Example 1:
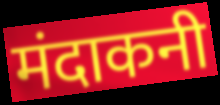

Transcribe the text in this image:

मंदाकनी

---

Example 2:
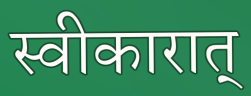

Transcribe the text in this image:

स्वीकारात्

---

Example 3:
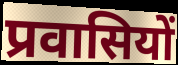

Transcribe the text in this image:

प्रवासियों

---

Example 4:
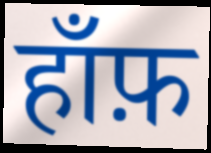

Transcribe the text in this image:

हाँफ़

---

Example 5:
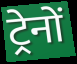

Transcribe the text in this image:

ट्रेनों